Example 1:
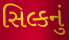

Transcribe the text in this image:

સિલ્કનું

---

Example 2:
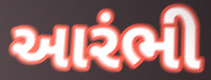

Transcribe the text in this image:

આરંભી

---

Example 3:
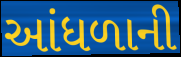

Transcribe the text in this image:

આંધળાની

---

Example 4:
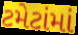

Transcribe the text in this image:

ટમેટાંમાં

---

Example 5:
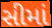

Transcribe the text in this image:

સીમાં